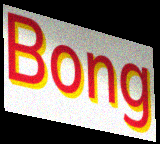
Bong